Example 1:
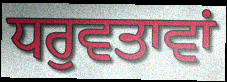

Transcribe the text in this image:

ਧਰੁਵਤਾਵਾਂ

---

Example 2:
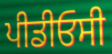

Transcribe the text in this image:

ਪੀਡੀਓਸੀ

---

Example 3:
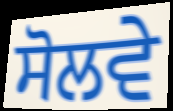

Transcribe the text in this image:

ਸੋਲਵੇ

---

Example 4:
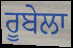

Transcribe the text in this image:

ਰੂਬੇਲਾ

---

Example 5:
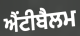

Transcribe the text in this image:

ਐਂਟੀਬੈਲਮ